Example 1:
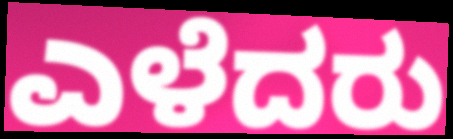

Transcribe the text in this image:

ಎಳೆದರು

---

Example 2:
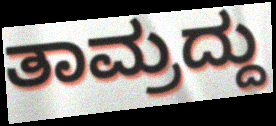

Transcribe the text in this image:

ತಾಮ್ರದ್ದು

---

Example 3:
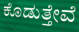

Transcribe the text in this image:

ಕೊಡುತ್ತೇವೆ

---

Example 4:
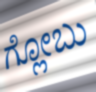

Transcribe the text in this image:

ಗ್ಲೋಬು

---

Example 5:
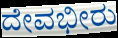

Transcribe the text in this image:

ದೇವಭೀರು